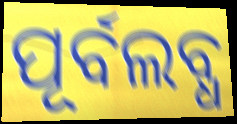
ପୂର୍ବଲବ୍ଧ